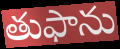
తుఫాను